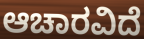
ಆಚಾರವಿದೆ